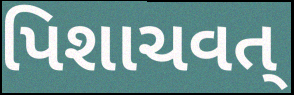
પિશાચવત્